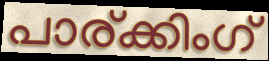
പാര്ക്കിംഗ്